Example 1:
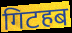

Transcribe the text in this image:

गिटहब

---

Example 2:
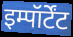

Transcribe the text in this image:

इम्पॉर्टेंट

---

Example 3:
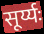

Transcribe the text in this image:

सूर्य्यः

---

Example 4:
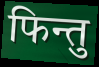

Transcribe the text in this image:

फिन्तु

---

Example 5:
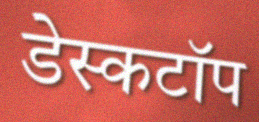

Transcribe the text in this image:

डेस्‍कटॉप